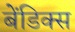
बेंडिक्स